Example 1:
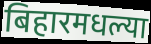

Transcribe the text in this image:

बिहारमधल्या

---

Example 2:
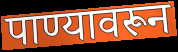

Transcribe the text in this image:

पाण्यावरून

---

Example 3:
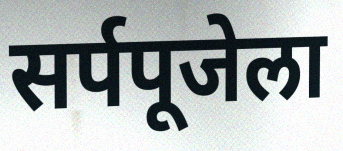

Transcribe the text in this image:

सर्पपूजेला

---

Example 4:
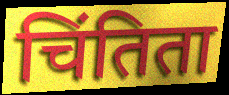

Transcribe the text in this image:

चिंतिता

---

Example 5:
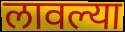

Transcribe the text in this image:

लावल्या